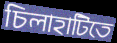
চিলাহাটিতে